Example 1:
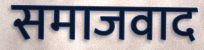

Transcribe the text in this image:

समाजवाद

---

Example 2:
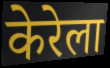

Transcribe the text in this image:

केरेला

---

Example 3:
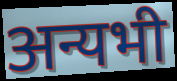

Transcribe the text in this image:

अन्यभी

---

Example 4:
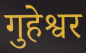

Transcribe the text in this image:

गुहेश्वर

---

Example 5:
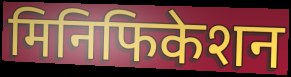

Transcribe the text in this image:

मिनिफिकेशन